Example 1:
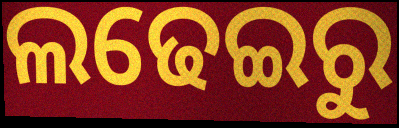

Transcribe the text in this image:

ଲଢେଇରୁ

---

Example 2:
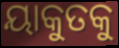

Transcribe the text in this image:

ୟାକୁତକୁ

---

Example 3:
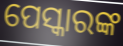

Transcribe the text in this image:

ପେସ୍କାରଙ୍କ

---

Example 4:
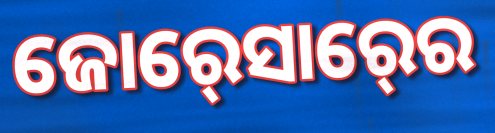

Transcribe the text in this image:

ଜୋର୍‍ସୋର୍‍ରେ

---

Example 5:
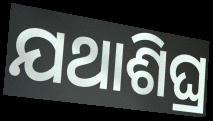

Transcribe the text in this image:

ଯଥାଶିଘ୍ର